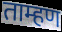
ताम्हण